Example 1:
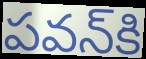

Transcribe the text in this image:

పవన్‌కి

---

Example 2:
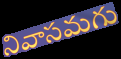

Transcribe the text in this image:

నివాసమగు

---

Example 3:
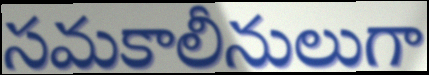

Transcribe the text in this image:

సమకాలీనులుగా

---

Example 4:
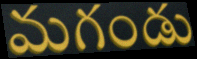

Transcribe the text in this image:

మగండు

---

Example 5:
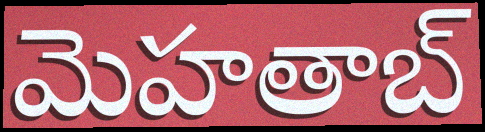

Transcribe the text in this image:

మెహతాబ్